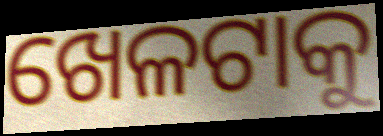
ଖେଳଟାକୁ